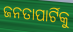
ଜନତାପାର୍ଟିକୁ